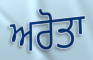
ਅਰੋਤਾ